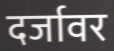
दर्जावर